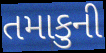
તમાકુની